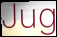
Jug